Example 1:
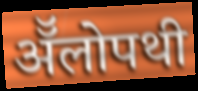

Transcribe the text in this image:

ॲॅलोपथी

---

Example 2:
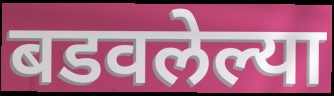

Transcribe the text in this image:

बडवलेल्या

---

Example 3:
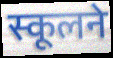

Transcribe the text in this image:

स्कूलने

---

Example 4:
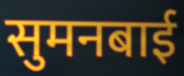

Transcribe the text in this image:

सुमनबाई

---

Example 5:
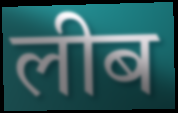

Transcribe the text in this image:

लीब